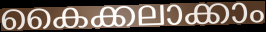
കൈക്കലാക്കാം